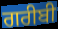
ਗਰੀਬੀ